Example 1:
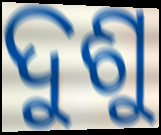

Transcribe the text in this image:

ଦୁଶୁ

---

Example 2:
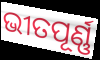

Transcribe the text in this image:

ଭୀତପୂର୍ଣ୍ଣ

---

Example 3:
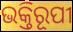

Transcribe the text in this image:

ଭକ୍ତିରୂପୀ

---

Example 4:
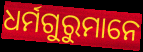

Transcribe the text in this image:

ଧର୍ମଗୁରୁମାନେ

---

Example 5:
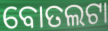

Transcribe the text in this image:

ବୋତଲଟା